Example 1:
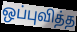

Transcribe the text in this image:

ஒப்புவித்த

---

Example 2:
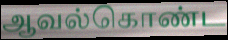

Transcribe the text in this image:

ஆவல்கொண்ட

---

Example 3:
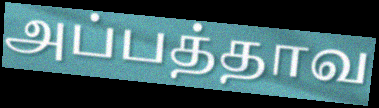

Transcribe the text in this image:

அப்பத்தாவ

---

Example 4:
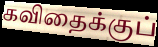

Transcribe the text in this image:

கவிதைக்குப்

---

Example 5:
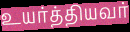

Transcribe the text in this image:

உயர்த்தியவர்